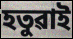
হতুৱাই